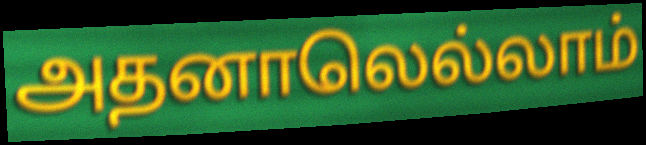
அதனாலெல்லாம்